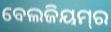
ବେଲଜିୟମ୍‌ର